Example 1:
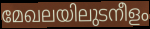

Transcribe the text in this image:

മേഖലയിലുടനീളം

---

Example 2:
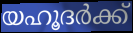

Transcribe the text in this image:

യഹൂദർക്ക്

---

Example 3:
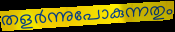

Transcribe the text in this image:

തളർന്നുപോകുന്നതും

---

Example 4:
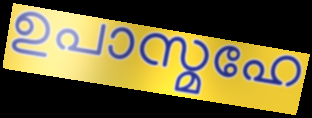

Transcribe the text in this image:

ഉപാസ്മഹേ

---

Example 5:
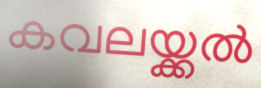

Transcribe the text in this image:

കവലയ്ക്കൽ